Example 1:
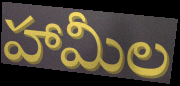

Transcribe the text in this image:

హామీల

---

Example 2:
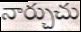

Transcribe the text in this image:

నార్చుచు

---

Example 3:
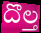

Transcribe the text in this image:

దొల్త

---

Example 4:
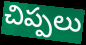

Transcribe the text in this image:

చిప్పలు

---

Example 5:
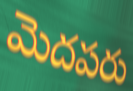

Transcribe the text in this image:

మెదపరు